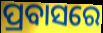
ପ୍ରବାସରେ